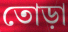
তোড়া